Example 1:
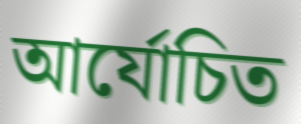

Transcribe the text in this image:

আর্যোচিত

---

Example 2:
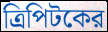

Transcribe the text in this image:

ত্রিপিটকের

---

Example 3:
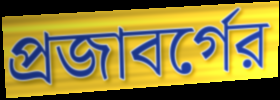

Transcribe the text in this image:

প্রজাবর্গের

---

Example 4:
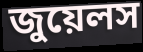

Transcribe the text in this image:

জুয়েলস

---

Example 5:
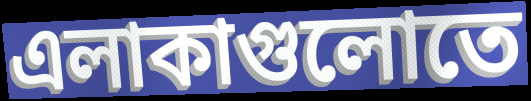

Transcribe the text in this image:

এলাকাগুলোতে